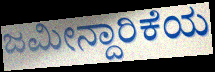
ಜಮೀನ್ದಾರಿಕೆಯ